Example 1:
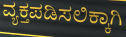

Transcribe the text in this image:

ವ್ಯಕ್ತಪಡಿಸಲಿಕ್ಕಾಗಿ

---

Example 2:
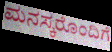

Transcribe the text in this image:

ಮನಸ್ಕರೊಂದಿಗೆ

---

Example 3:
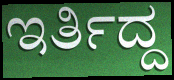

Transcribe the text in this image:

ಇರ್ತಿದ್ದ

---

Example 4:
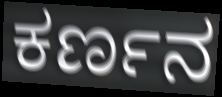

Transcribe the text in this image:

ಕರ್ಣನ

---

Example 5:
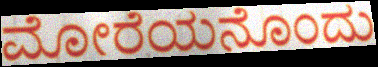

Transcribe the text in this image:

ಮೋರೆಯನೊಂದು